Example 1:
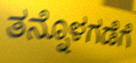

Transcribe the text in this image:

ತನ್ನೊಳಗಡೆಗೆ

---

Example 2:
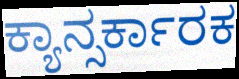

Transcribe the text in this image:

ಕ್ಯಾನ್ಸರ್ಕಾರಕ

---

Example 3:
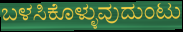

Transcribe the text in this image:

ಬಳಸಿಕೊಳ್ಳುವುದುಂಟು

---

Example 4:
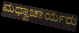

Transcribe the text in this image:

ಮಧ್ವಾಚಾರ್ಯರು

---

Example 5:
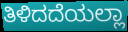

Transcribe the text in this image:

ತಿಳಿದದೆಯಲ್ಲಾ